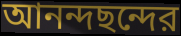
আনন্দছন্দের